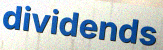
dividends